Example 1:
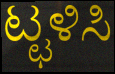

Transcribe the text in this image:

ಟ್ಟಳಿಸಿ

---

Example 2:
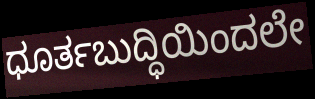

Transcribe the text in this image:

ಧೂರ್ತಬುದ್ಧಿಯಿಂದಲೇ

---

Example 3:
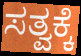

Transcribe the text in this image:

ಸತ್ವಕ್ಕೆ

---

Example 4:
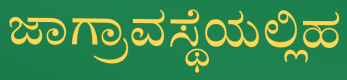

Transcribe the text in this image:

ಜಾಗ್ರಾವಸ್ಥೆಯಲ್ಲಿಹ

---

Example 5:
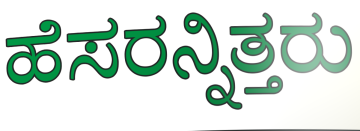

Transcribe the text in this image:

ಹೆಸರನ್ನಿತ್ತರು